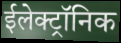
ईलेक्ट्रॉनिक